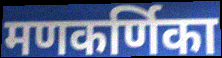
मणकर्णिका